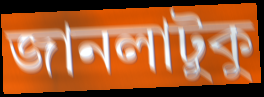
জানলাটুকু